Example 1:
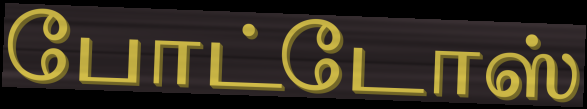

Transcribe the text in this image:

போட்டோஸ்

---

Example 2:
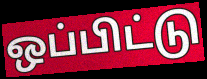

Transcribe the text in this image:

ஒப்பிட்டு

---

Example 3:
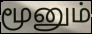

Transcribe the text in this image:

மூனும்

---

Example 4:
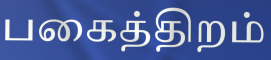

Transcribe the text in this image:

பகைத்திறம்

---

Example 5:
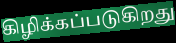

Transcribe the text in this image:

கிழிக்கப்படுகிறது